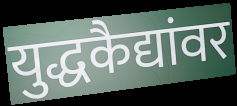
युद्धकैद्यांवर